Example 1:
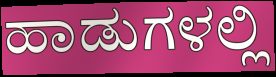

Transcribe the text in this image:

ಹಾಡುಗಳಲ್ಲಿ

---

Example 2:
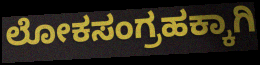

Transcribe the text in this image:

ಲೋಕಸಂಗ್ರಹಕ್ಕಾಗಿ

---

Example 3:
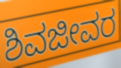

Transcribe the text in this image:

ಶಿವಜೀವರ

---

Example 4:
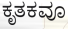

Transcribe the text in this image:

ಕೃತಕವೂ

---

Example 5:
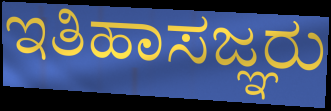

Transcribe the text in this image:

ಇತಿಹಾಸಜ್ಞರು